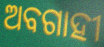
ଅବଗାହୀ